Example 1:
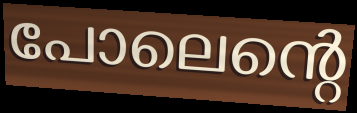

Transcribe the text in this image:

പോലെന്റെ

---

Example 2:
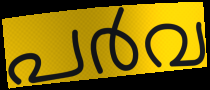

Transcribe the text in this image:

പർവ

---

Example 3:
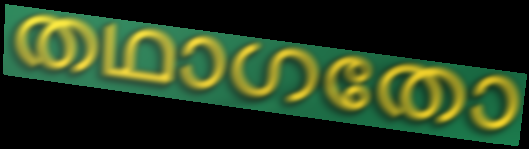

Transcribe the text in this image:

തഥാഗതോ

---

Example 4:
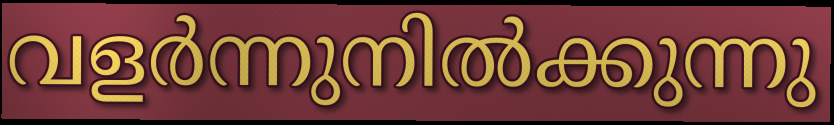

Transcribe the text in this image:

വളർന്നുനിൽക്കുന്നു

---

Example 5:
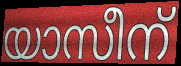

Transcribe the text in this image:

യാസീന്